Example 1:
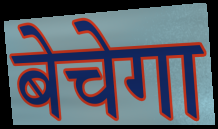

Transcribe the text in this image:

बेचेगा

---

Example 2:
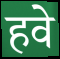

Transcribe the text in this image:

हवे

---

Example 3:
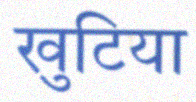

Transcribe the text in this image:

खुटिया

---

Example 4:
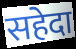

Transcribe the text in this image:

सहेदा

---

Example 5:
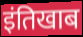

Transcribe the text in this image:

इंतिखाब